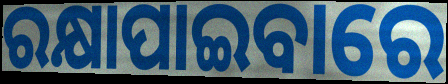
ରକ୍ଷାପାଇବାରେ